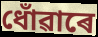
ধোঁৱাৰে